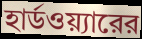
হার্ডওয়্যারের